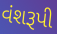
વંશરૂપી